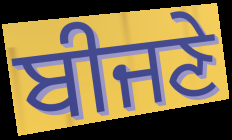
ਬੀਜਣੇ